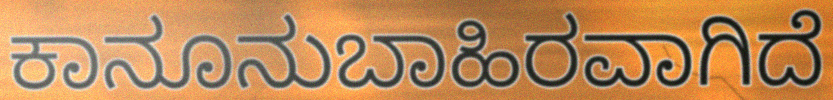
ಕಾನೂನುಬಾಹಿರವಾಗಿದೆ